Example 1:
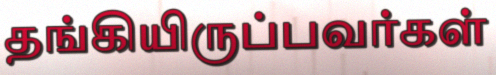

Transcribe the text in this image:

தங்கியிருப்பவர்கள்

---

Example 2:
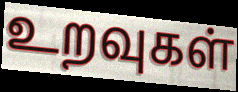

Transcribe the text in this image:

உறவுகள்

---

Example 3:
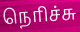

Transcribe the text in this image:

நெரிச்சு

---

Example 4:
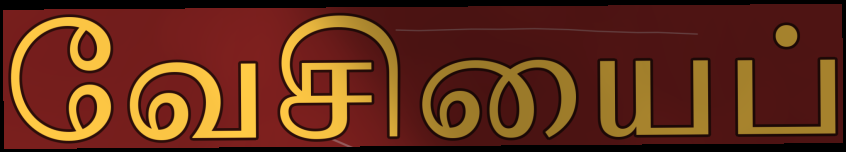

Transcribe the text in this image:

வேசியைப்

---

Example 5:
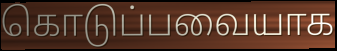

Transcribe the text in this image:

கொடுப்பவையாக